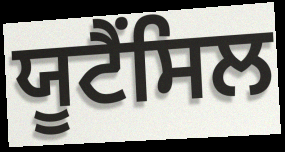
ਯੂਟੈਂਸਿਲ